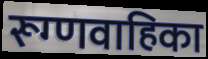
रूग्णवाहिका